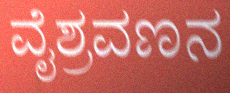
ವೈಶ್ರವಣನ